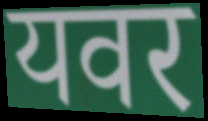
यवर